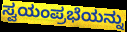
ಸ್ವಯಂಪ್ರಭೆಯನ್ನು